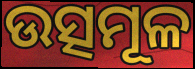
ଉତ୍ସମୂଳ